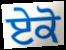
ਏਕੋ